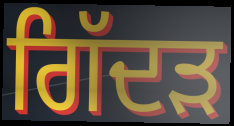
ਗਿੱਦਡ਼